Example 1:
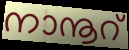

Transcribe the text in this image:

നാനൂറ്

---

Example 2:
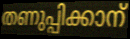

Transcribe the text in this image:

തണുപ്പിക്കാന്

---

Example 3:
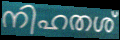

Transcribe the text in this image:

നിഹതശ്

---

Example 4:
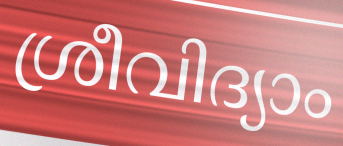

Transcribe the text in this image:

ശ്രീവിദ്യാം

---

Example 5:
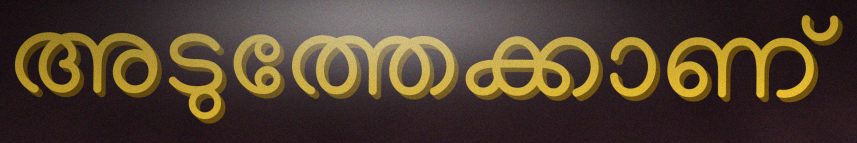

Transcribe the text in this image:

അടുത്തേക്കാണ്